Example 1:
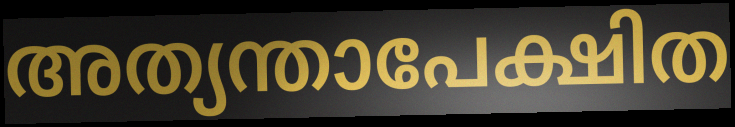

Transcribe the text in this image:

അത്യന്താപേക്ഷിത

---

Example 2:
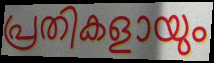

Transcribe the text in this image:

പ്രതികളായും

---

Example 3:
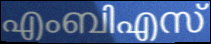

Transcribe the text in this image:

എംബിഎസ്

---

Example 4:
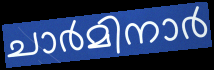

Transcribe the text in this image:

ചാർമിനാർ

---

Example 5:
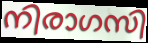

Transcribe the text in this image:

നിരാഗസി